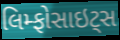
લિમ્ફોસાઇટ્સ